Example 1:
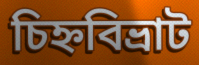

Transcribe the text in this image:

চিহ্নবিভ্রাট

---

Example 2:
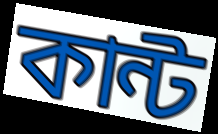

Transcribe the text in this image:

কান্ট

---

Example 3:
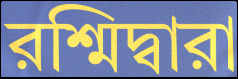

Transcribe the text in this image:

রশ্মিদ্বারা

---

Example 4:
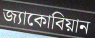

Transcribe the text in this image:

জ্যাকোবিয়ান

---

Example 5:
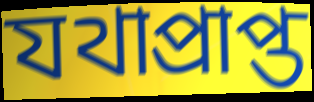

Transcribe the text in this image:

যথাপ্রাপ্ত